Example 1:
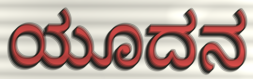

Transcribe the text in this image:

ಯೂದನ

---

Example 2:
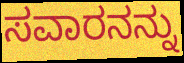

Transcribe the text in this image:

ಸವಾರನನ್ನು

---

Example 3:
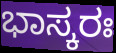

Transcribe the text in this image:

ಭಾಸ್ಕರಃ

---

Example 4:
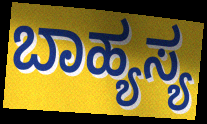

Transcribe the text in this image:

ಬಾಹ್ಯಸ್ಯ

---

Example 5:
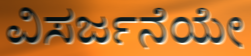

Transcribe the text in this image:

ವಿಸರ್ಜನೆಯೇ